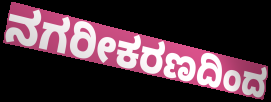
ನಗರೀಕರಣದಿಂದ